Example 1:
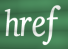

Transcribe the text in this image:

href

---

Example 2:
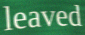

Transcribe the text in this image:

leaved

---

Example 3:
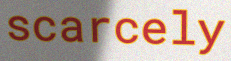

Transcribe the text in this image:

scarcely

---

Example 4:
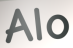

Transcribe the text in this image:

Alo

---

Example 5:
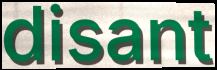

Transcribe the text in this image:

disant